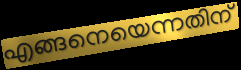
എങ്ങനെയെന്നതിന്